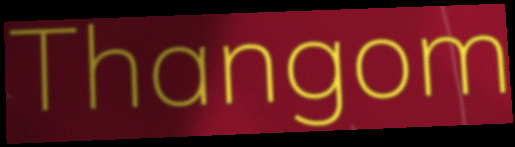
Thangom